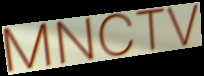
MNCTV